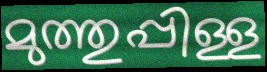
മുത്തുപ്പിള്ള